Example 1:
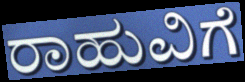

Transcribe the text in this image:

ರಾಹುವಿಗೆ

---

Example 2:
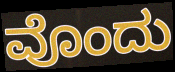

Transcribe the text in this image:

ವೊಂದು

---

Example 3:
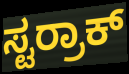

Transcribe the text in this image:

ಸ್ಟರ್ರಾಕ್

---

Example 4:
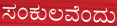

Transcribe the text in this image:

ಸಂಕುಲವೆಂದು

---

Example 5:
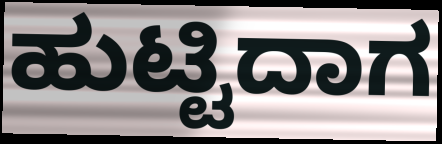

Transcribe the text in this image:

ಹುಟ್ಟಿದಾಗ